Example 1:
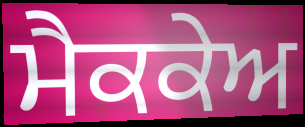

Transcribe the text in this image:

ਮੈਕਕੇਅ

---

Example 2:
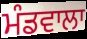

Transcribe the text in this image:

ਮੰਡਵਾਲਾ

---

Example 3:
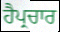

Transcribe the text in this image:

ਹੈਪ੍ਰਚਾਰ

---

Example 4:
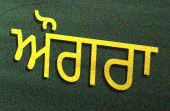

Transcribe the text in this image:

ਔਗਰਾ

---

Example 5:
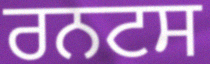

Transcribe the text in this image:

ਰਨਟਸ